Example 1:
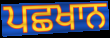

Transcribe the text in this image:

ਪਛਖਾਨ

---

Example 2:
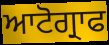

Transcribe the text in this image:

ਆਟੋਗ੍ਰਾਫ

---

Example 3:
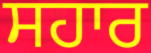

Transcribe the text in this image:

ਸਹਾਰ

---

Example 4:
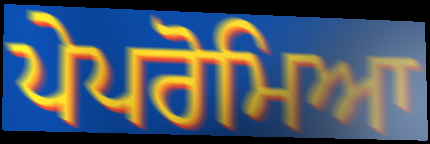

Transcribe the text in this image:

ਪੇਪਰੋਮਿਆ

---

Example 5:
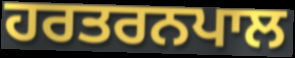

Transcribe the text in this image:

ਹਰਤਰਨਪਾਲ